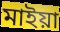
মাইয়া